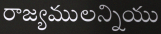
రాజ్యములన్నియు